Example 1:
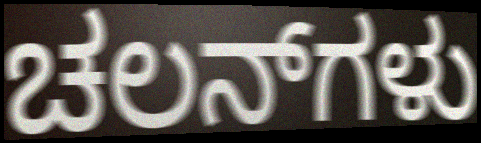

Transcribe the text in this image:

ಚಲನ್‌ಗಳು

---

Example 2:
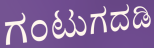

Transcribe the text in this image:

ಗಂಟುಗದಡಿ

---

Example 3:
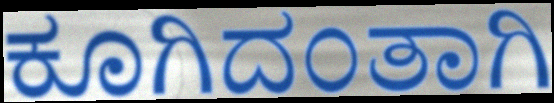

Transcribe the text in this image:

ಕೂಗಿದಂತಾಗಿ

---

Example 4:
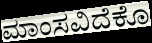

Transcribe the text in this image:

ಮಾಂಸವಿದೆಕೊ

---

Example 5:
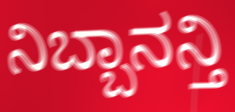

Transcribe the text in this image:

ನಿಬ್ಬಾನನ್ತಿ